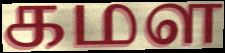
கமள